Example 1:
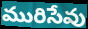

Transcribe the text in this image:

మురిసేవు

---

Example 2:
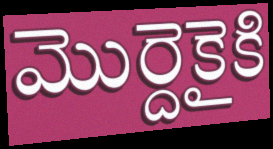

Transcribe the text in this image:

మొర్దెకైకి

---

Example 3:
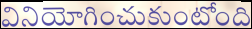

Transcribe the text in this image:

వినియోగించుకుంటోంది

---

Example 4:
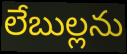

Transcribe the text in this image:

లేబుల్లను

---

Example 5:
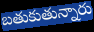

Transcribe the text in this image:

బతుకుతున్నారు